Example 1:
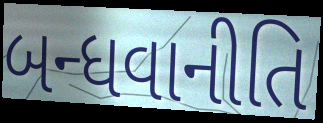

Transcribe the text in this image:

બન્ધવાનીતિ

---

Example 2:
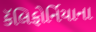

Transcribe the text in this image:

કૅલિફોર્નિયાના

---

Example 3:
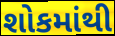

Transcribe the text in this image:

શોકમાંથી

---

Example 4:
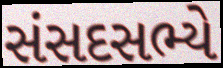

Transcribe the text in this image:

સંસદસભ્યે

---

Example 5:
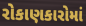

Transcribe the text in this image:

રોકાણકારોમાં